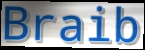
Braib